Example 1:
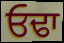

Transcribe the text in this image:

ਓਢਾ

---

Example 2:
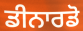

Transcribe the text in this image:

ਡੀਨਾਰਡੋ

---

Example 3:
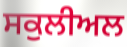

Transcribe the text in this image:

ਸਕੁਲੀਅਲ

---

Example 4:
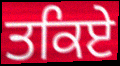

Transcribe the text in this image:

ਤਕਿਏ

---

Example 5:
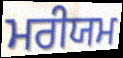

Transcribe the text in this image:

ਮਰੀਯਮ